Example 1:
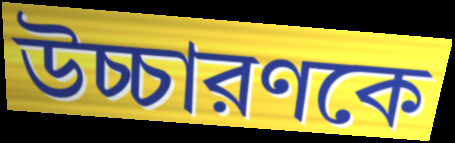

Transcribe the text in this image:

উচ্চারণকে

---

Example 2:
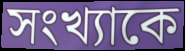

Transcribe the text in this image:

সংখ্যাকে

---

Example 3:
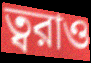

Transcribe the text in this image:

ত্বরাও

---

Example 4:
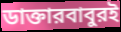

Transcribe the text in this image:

ডাক্তারবাবুরই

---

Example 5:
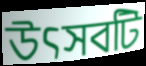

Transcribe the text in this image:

উৎসবটি